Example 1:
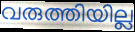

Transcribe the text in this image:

വരുത്തിയില്ല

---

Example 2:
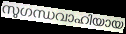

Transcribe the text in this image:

സുഗന്ധവാഹിയായ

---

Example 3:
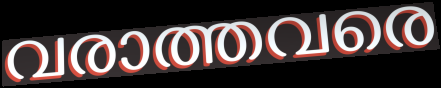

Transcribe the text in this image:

വരാത്തവരെ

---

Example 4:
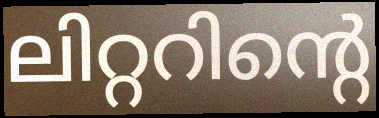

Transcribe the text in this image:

ലിറ്ററിന്റെ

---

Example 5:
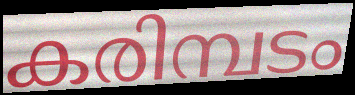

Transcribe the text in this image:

കരിമ്പടം